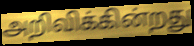
அறிவிக்கின்றது